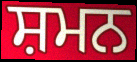
ਸ਼ਮਨ